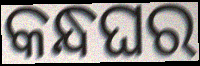
କନ୍ଧଘର